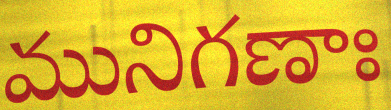
మునిగణాః